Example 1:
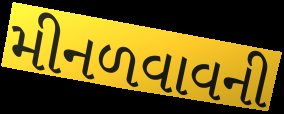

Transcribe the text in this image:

મીનળવાવની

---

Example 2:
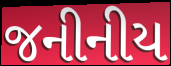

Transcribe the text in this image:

જનીનીય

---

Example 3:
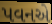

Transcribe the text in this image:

પવનએ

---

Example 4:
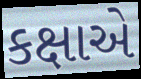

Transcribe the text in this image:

કક્ષાએ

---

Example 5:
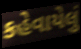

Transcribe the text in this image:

કહેવાયેલું